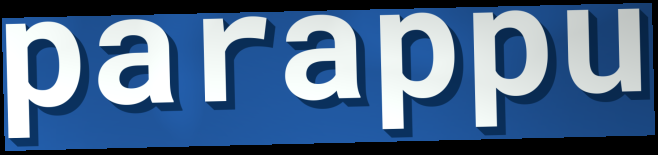
parappu